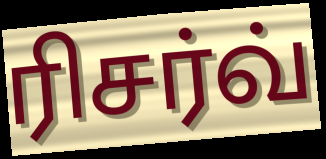
ரிசர்வ்